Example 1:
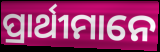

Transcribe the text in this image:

ପ୍ରାର୍ଥୀମାନେ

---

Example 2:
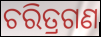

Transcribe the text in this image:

ଚରିତ୍ରଗଣ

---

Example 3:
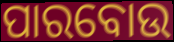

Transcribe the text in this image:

ପାରବୋଉ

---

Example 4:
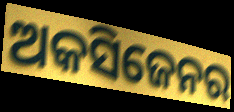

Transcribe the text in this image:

ଅକସିଜେନର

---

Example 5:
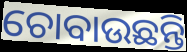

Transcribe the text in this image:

ଚୋବାଉଛନ୍ତି